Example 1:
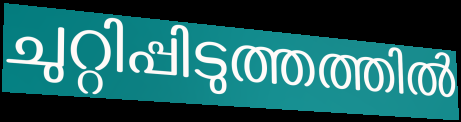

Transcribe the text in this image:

ചുറ്റിപ്പിടുത്തത്തിൽ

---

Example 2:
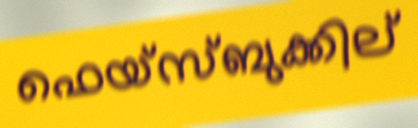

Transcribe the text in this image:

ഫെയ്സ്ബുക്കില്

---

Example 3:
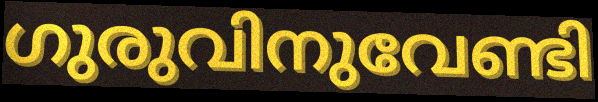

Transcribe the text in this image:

ഗുരുവിനുവേണ്ടി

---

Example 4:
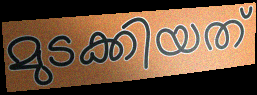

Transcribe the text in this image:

മുടക്കിയത്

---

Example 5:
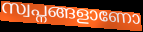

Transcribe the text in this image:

സ്വപ്നങ്ങളാണോ